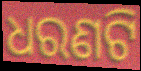
ଧରଣଟି